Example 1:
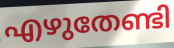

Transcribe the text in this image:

എഴുതേണ്ടി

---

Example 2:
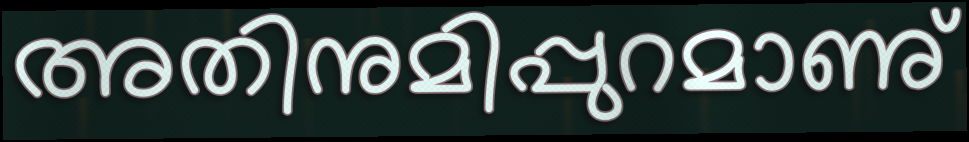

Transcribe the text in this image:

അതിനുമിപ്പുറമാണു്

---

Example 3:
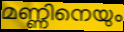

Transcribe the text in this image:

മണ്ണിനെയും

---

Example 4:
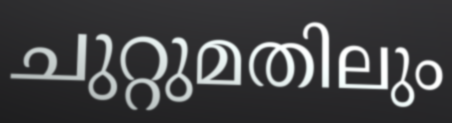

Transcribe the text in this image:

ചുറ്റുമതിലും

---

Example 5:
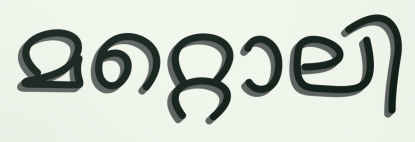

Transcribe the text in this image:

മറ്റൊലി